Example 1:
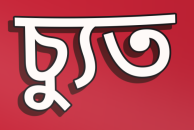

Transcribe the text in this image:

চ্যুত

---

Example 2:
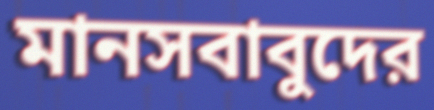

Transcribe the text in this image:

মানসবাবুদের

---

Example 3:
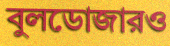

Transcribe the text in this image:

বুলডোজারও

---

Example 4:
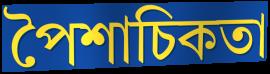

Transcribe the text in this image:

পৈশাচিকতা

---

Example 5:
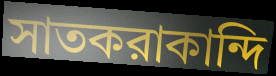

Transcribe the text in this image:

সাতকরাকান্দি